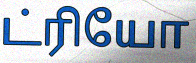
ட்ரியோ